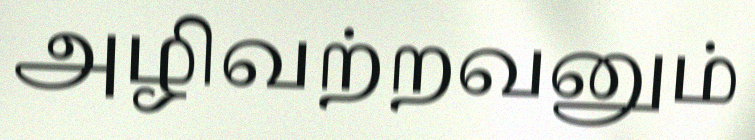
அழிவற்றவனும்